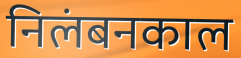
निलंबनकाल